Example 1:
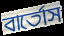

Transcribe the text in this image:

বার্তোস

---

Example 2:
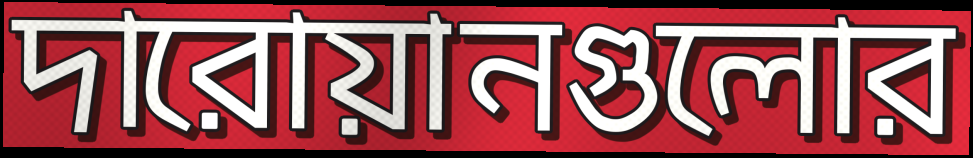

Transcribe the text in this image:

দারোয়ানগুলোর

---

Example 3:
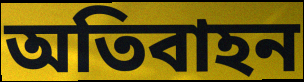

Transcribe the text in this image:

অতিবাহন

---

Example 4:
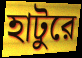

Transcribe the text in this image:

হাটুরে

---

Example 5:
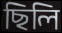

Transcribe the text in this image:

ছিলি